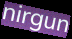
nirgun